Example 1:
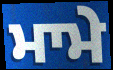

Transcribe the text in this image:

ਮਾਮੇ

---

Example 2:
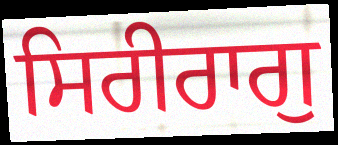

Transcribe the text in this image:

ਸਿਰੀਰਾਗੁ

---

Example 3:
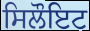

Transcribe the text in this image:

ਸਿਲੌਇਟ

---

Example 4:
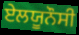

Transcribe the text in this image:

ਏਲਯੂਨੌਸੀ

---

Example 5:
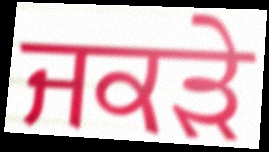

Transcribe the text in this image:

ਜਕੜੇ